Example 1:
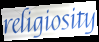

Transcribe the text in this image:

religiosity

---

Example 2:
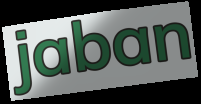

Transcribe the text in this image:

jaban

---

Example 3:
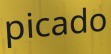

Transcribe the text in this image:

picado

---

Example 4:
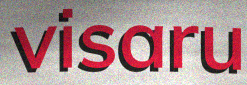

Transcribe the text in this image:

visaru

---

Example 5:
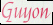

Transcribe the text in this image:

Guyon